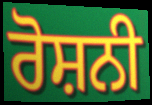
ਰੋਸ਼ਨੀ